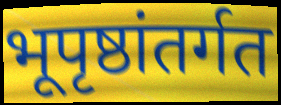
भूपृष्ठांतर्गत